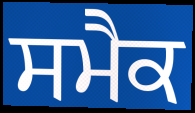
ਸਮੈਕ